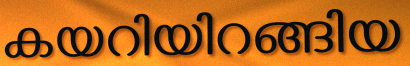
കയറിയിറങ്ങിയ